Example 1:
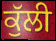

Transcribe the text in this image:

ਕੁੱਲੀ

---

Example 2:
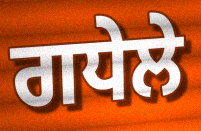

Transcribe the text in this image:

ਗਧੇਲੇ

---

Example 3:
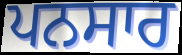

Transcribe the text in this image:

ਪਨਸਾਰ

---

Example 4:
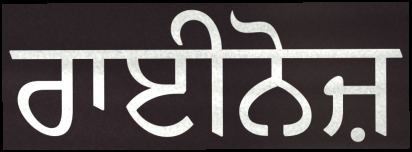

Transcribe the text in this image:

ਰਾਈਨੋਜ਼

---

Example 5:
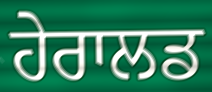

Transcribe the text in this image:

ਹੇਰਾਲਡ